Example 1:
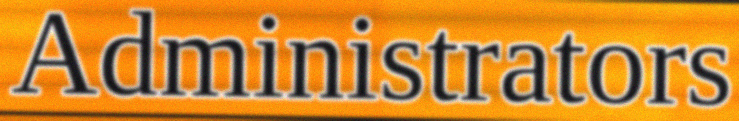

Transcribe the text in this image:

Administrators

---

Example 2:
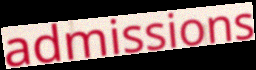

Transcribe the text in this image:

admissions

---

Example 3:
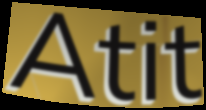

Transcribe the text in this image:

Atit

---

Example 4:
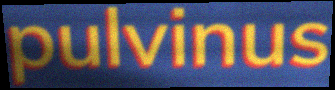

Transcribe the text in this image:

pulvinus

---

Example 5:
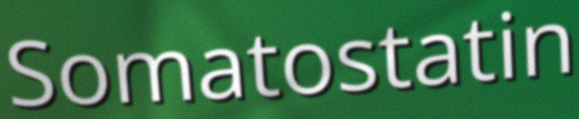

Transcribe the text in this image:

Somatostatin